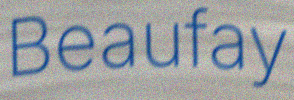
Beaufay